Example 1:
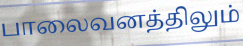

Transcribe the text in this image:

பாலைவனத்திலும்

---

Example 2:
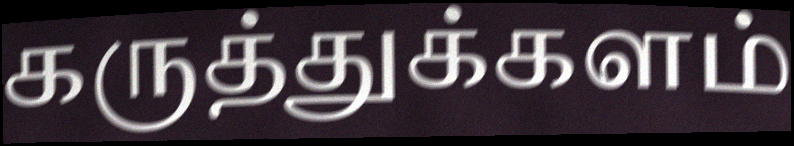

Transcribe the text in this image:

கருத்துக்களம்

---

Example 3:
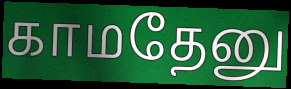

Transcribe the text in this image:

காமதேனு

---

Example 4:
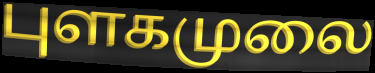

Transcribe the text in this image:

புளகமுலை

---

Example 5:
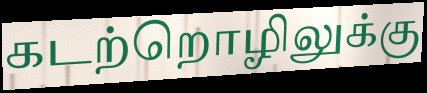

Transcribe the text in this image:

கடற்றொழிலுக்கு